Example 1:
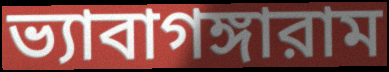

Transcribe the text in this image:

ভ্যাবাগঙ্গারাম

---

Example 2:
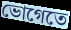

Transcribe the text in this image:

ভোগেতে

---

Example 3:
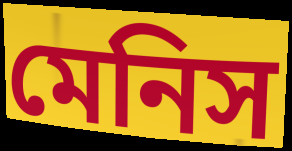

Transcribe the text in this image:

মেনিস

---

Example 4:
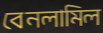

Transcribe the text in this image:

বেনলামিল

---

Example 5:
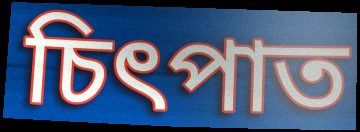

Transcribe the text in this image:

চিৎপাত